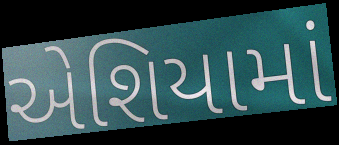
એશિયામાં